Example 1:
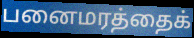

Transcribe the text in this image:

பனைமரத்தைக்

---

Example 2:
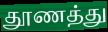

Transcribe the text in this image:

தூணத்து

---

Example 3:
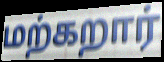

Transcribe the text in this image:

மற்கறார்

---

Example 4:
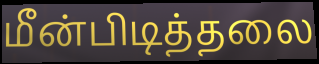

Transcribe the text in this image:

மீன்பிடித்தலை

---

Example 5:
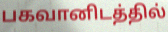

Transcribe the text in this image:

பகவானிடத்தில்